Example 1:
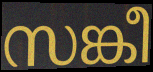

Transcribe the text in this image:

സങ്കീ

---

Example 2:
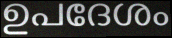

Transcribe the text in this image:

ഉപദേശം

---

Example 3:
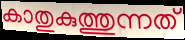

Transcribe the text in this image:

കാതുകുത്തുന്നത്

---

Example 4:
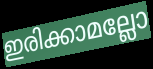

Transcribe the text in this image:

ഇരിക്കാമല്ലോ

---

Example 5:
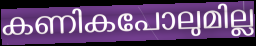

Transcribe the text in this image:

കണികപോലുമില്ല